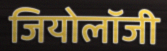
जियोलॉजी